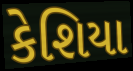
કેશિયા